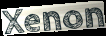
Xenon